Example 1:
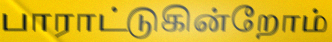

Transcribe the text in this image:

பாராட்டுகின்றோம்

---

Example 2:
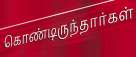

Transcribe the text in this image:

கொண்டிருந்தார்கள்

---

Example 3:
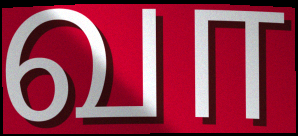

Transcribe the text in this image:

வா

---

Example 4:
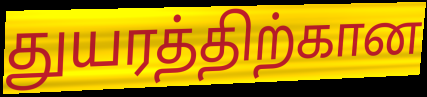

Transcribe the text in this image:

துயரத்திற்கான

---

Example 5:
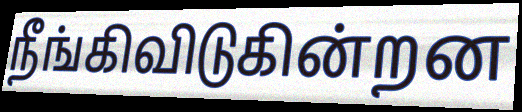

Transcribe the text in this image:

நீங்கிவிடுகின்றன